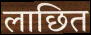
लाछित